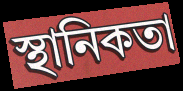
স্থানিকতা